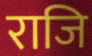
राजि